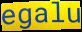
egalu